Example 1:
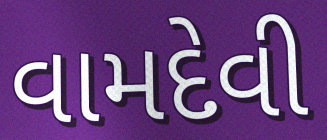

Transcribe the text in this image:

વામદેવી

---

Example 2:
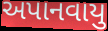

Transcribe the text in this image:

અપાનવાયુ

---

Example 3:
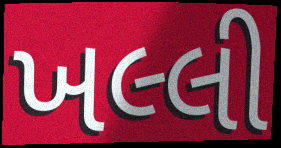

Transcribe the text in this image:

ખલ્લી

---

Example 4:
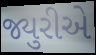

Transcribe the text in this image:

જ્યુરીએ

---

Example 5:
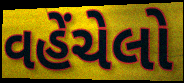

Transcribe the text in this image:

વહેંચેલો